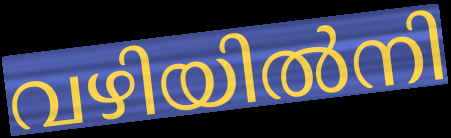
വഴിയിൽനി